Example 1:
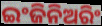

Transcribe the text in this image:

ଇଂଜିନିଅରିଂ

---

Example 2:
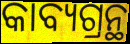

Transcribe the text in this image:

କାବ୍ୟଗ୍ରନ୍ଥ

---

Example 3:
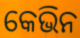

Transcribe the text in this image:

କେଭିନ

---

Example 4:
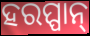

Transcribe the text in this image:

ହରପ୍ପାନ୍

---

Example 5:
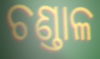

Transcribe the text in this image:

ଚଣ୍ଡାଳ